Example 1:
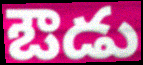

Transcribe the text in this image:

ఔడు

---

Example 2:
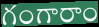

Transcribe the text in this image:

గంగారాం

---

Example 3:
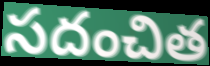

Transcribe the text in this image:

సదంచిత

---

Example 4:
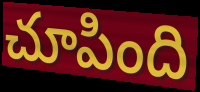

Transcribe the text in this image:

చూపింది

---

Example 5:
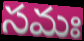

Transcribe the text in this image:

సమః